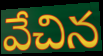
వేచిన